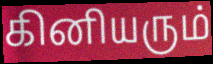
கினியரும்